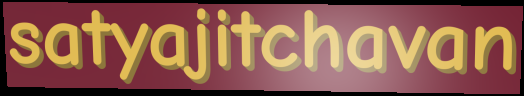
satyajitchavan